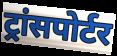
ट्रांसपोर्टर